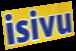
isivu